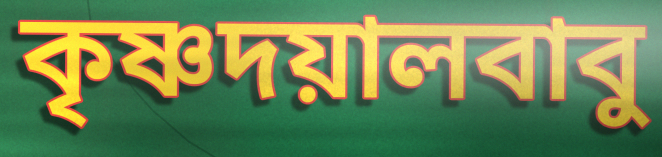
কৃষ্ণদয়ালবাবু